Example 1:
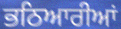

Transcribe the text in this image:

ਭਠਿਆਰੀਆਂ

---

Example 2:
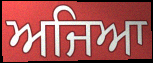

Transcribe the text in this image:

ਅਜਿਆ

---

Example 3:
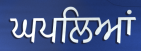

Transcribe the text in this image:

ਘਪਲਿਆਂ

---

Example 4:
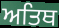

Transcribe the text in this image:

ਅਤਿਥ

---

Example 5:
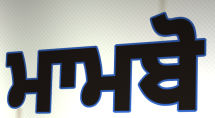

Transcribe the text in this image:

ਮਾਮਬੋ